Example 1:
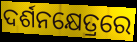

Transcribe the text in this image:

ଦର୍ଶନକ୍ଷେତ୍ରରେ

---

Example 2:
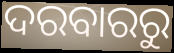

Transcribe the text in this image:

ଦରବାରରୁ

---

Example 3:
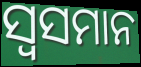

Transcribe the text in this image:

ସ୍ୱସମାନ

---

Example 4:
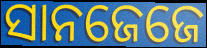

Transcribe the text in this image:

ସାନଜେଜେ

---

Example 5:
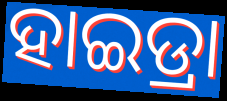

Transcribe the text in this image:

ହାଇଡ୍ରା